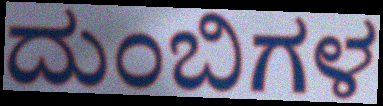
ದುಂಬಿಗಳ